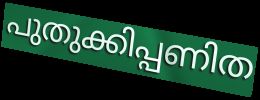
പുതുക്കിപ്പണിത